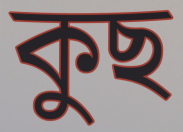
কুছ